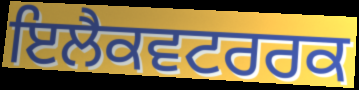
ਇਲੈਕਵਟਰਰਕ